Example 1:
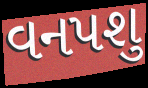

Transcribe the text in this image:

વનપશુ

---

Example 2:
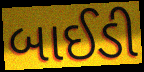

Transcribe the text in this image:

બાઈડી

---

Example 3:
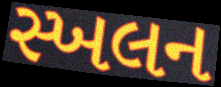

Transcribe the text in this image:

સ્ખલન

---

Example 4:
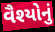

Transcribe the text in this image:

વૈશ્યોનું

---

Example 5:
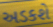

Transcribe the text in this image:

અડકશે